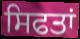
ਸਿਫਤਾਂ